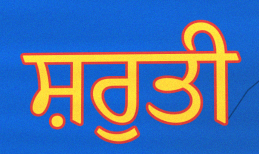
ਸ਼ਰੁਤੀ